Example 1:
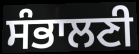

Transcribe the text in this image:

ਸੰਭਾਲਣੀ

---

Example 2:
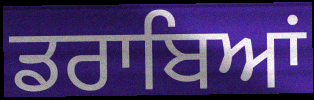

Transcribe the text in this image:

ਡਰਾਬਿਆਂ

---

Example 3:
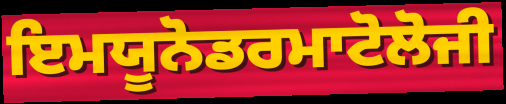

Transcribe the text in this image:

ਇਮਯੂਨੋਡਰਮਾਟੋਲੋਜੀ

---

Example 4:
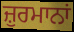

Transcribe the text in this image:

ਜ਼ੁਰਮਾਨਾਂ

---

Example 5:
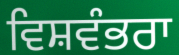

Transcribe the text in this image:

ਵਿਸ਼ਵੰਭਰਾ